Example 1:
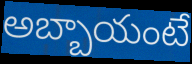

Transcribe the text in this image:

అబ్బాయంటే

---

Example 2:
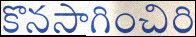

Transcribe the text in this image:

కొనసాగించిరి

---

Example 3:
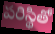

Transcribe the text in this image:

పరిస్థితో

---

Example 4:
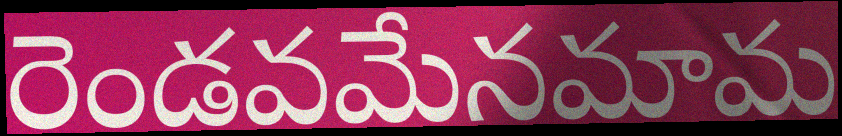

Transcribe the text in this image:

రెండవమేనమామ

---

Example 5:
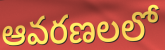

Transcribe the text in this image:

ఆవరణలలో